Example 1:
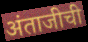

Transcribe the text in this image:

अंताजीची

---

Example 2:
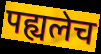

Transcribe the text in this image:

पह्यलेच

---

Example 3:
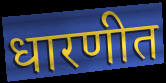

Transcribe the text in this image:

धारणीत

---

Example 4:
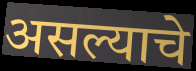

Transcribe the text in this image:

असल्‍याचे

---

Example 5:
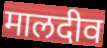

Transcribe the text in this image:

मालदीव